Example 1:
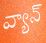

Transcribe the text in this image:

వ్యాన్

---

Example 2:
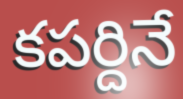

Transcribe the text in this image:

కపర్దినే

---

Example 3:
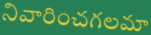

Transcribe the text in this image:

నివారించగలమా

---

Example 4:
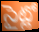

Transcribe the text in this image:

సైట్లో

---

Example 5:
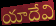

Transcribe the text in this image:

యాదేవి